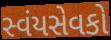
સ્વંયસેવકો